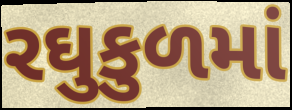
રઘુકુળમાં